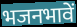
भजनभावें